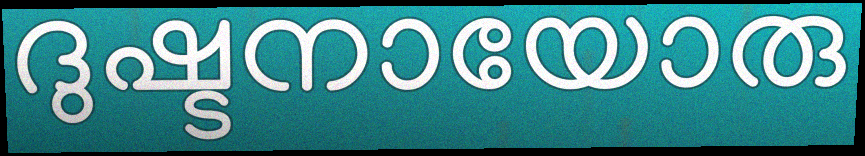
ദുഷ്ടനായോരു